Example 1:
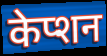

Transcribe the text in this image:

केप्शन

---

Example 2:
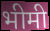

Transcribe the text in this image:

भीमी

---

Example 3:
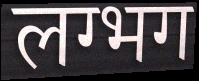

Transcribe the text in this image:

लग्भग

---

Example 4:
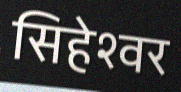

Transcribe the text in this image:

सिहेश्वर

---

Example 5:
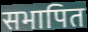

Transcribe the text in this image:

सभापित